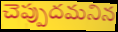
చెప్పుదమనిన